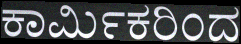
ಕಾರ್ಮಿಕರಿಂದ